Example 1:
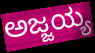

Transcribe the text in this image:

ಅಜ್ಜಯ್ಯ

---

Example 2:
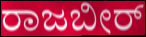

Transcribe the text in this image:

ರಾಜಬೀರ್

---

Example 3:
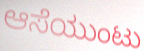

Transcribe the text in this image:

ಆಸೆಯುಂಟು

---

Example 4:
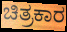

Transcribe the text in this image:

ಚಿತ್ರಕಾರ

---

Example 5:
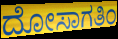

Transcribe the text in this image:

ದೋಸಾಗತಿಂ